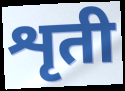
शृती